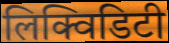
लिक्विडिटी